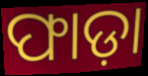
ଫାଡ଼ା